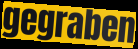
gegraben